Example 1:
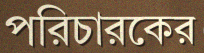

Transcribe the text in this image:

পরিচারকের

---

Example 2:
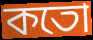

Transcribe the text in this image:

কতো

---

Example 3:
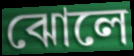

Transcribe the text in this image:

ঝোলে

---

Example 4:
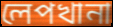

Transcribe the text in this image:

লেপখানা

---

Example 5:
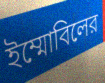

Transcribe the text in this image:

ইম্মোবিলের